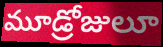
మూడ్రోజులూ